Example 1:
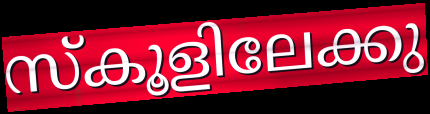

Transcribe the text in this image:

സ്കൂളിലേക്കു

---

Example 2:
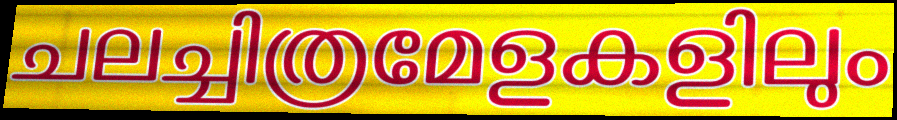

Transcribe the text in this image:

ചലച്ചിത്രമേളകളിലും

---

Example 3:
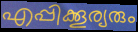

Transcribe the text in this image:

എപ്പിക്കൂര്യരും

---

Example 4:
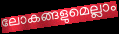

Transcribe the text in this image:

ലോകങ്ങളുമെല്ലാം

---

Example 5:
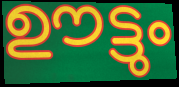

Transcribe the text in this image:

ഊട്ടും